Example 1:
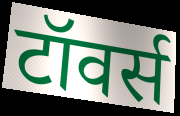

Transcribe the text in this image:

टॉवर्स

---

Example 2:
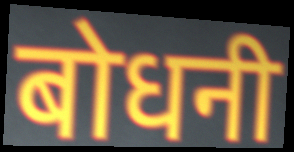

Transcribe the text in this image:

बोधनी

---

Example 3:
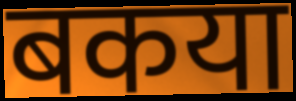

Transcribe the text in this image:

बकया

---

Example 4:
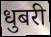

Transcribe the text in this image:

धुबरी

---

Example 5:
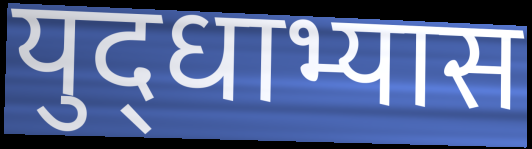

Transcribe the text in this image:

युद्धाभ्यास